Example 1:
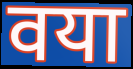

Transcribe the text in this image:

वया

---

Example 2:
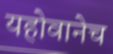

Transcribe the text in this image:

यहोवानेच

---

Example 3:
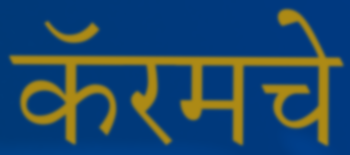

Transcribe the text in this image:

कॅरमचे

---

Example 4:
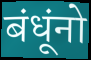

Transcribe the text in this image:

बंधूंनो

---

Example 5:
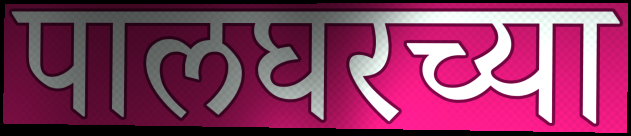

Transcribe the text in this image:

पालघरच्या